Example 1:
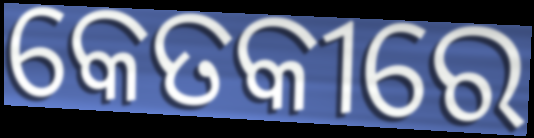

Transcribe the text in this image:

କେତକୀରେ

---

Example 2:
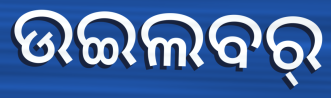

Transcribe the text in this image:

ଉଇଲବର୍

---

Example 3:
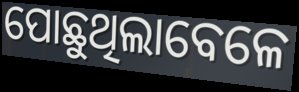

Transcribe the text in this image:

ପୋଛୁଥିଲାବେଳେ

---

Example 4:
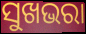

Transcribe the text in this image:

ସୁଖଭରା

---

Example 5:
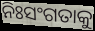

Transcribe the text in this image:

ନିଃସଂଗତାକୁ